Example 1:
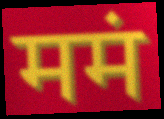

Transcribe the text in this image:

ममं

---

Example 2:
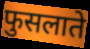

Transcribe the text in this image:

फुसलाते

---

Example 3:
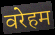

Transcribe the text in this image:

वरेहम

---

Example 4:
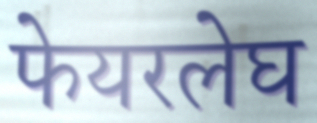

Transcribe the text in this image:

फेयरलेघ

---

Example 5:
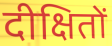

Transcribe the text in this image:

दीक्षितों